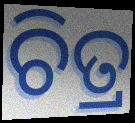
ଚିତ୍ର